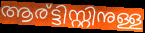
ആര്ട്ടിസ്റ്റിനുള്ള